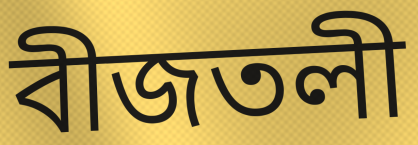
বীজতলী